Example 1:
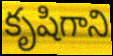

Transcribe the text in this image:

కృషిగాని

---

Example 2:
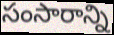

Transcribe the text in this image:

సంసారాన్ని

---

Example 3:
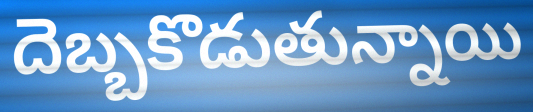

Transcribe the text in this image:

దెబ్బకొడుతున్నాయి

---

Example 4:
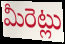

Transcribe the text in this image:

మీరెట్లు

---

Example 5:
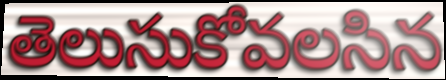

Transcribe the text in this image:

తెలుసుకోవలసిన